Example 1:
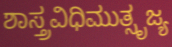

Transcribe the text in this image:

ಶಾಸ್ತ್ರವಿಧಿಮುತ್ಸೃಜ್ಯ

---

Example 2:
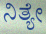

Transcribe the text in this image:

ನಿತ್ಯೇ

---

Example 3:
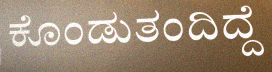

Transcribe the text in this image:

ಕೊಂಡುತಂದಿದ್ದೆ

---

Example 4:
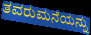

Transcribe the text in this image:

ತವರುಮನೆಯನ್ನು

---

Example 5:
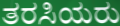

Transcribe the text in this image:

ತರಸಿಯರು